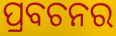
ପ୍ରବଚନର